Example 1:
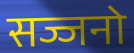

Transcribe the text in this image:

सज्जनो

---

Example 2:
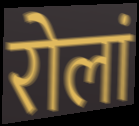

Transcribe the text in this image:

रोलां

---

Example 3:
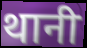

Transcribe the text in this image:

थानी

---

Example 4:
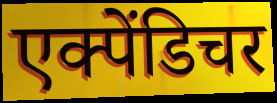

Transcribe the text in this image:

एक्पेंडिचर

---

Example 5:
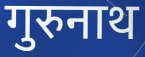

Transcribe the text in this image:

गुरुनाथ